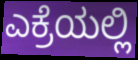
ಎಕ್ರೆಯಲ್ಲಿ